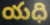
యధి